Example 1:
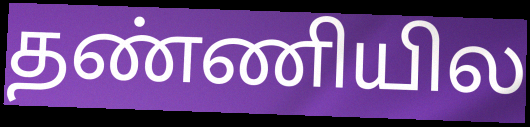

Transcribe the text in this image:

தண்ணியில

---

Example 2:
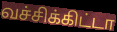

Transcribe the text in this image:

வச்சிக்கிட்டா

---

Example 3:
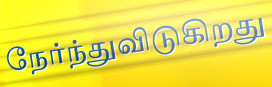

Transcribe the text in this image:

நேர்ந்துவிடுகிறது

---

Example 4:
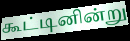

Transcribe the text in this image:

கூட்டினின்று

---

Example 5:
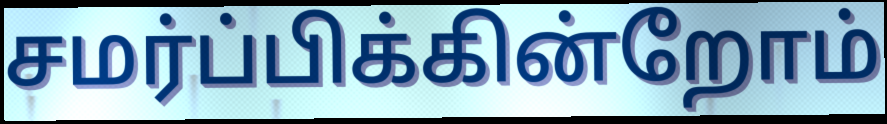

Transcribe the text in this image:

சமர்ப்பிக்கின்றோம்